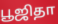
பூஜிதா